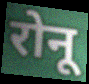
रोनू